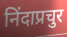
निंदाप्रचुर